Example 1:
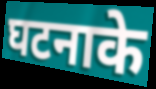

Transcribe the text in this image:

घटनाके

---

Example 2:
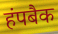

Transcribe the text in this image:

हंपबैक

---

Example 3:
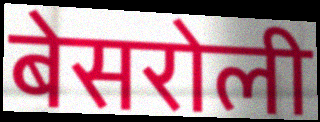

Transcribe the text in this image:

बेसरोली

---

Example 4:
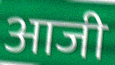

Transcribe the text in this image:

आजी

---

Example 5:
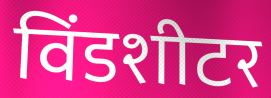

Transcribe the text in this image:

विंडशीटर